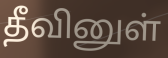
தீவினுள்